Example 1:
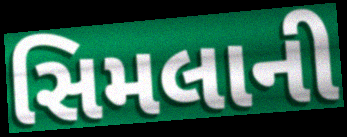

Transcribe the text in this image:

સિમલાની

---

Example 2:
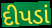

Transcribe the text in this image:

દીપડાં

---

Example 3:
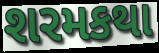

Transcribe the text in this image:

શરમકથા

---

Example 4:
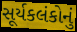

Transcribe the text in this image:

સૂર્યકલંકોનું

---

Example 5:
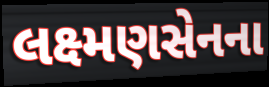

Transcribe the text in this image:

લક્ષ્મણસેનના